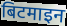
बिटमाइन